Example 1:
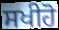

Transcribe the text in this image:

ਸਖੀਹੋ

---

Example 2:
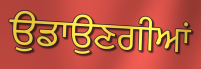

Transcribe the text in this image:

ਉਡਾਉਣਗੀਆਂ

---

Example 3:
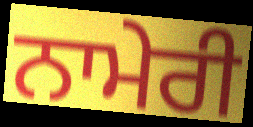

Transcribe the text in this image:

ਨਾਮੇਰੀ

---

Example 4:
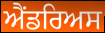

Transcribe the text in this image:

ਐਂਡਰਿਅਸ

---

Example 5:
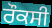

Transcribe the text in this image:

ਰੌਕਸੀ